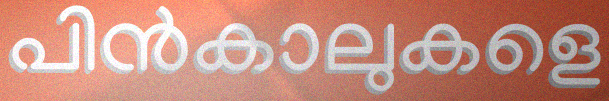
പിൻകാലുകളെ